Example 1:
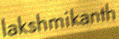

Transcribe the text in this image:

lakshmikanth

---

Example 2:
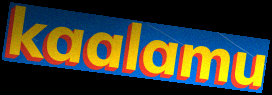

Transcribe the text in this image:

kaalamu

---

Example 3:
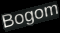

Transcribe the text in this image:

Bogom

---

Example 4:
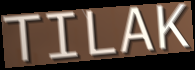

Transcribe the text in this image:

TILAK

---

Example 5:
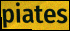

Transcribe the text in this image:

piates